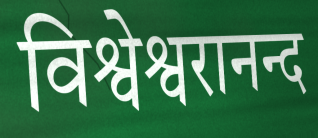
विश्वेश्वरानन्द